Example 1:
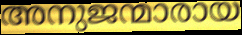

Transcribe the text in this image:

അനുജന്മാരായ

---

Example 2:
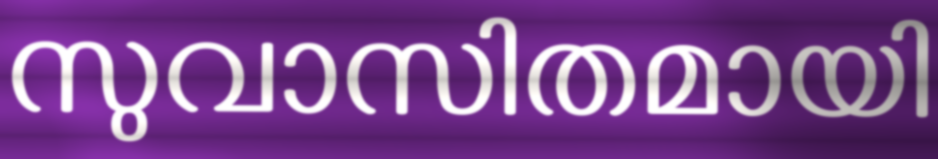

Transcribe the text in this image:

സുവാസിതമായി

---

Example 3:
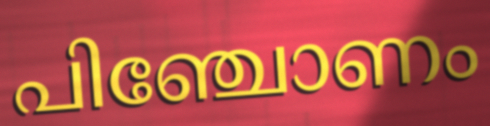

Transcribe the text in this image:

പിഞ്ചോണം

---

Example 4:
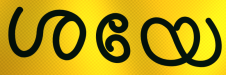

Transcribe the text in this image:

ശയേ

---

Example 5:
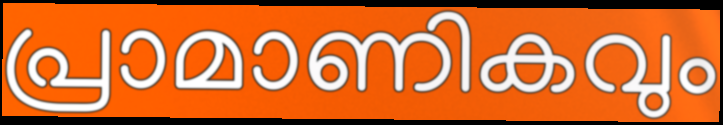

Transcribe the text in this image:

പ്രാമാണികവും